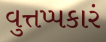
વુત્તપ્પકારં